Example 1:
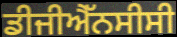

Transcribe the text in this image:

ਡੀਜੀਐੱਨਸੀਸੀ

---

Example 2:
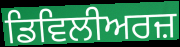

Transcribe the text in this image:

ਡਿਵਿਲੀਅਰਜ਼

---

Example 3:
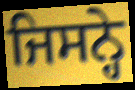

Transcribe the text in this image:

ਜਿਸਨ੍ਹੇ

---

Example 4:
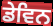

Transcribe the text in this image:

ਡੇਵਿਨ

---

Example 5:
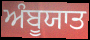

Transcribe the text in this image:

ਅੰਬੂਯਾਤ